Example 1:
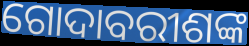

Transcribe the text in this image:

ଗୋଦାବରୀଶଙ୍କ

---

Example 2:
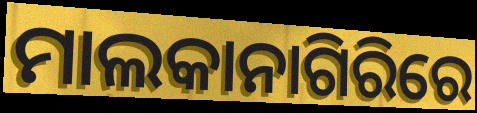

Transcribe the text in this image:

ମାଲକାନାଗିରିରେ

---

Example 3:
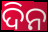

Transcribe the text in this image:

ଦିନ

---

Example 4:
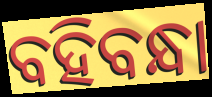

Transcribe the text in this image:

ବହିବନ୍ଧା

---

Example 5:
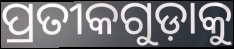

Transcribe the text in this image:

ପ୍ରତୀକଗୁଡ଼ାକୁ